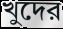
খুদের